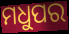
ମଧୁପର